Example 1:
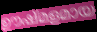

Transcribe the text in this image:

ഊഷ്മളമായ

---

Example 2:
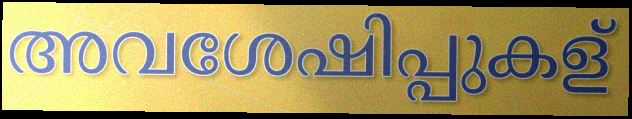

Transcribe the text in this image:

അവശേഷിപ്പുകള്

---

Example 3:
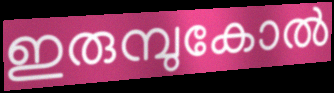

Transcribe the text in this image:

ഇരുമ്പുകോൽ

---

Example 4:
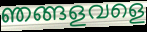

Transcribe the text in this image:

ഞങ്ങളവളെ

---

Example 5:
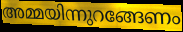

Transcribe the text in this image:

അമ്മയിന്നുറങ്ങേണം